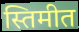
स्तिमीत